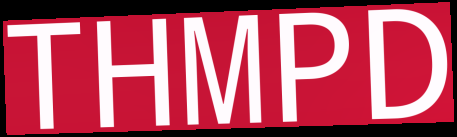
THMPD